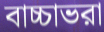
বাচ্চাভরা